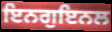
ਇਨਗੁਇਨਲ